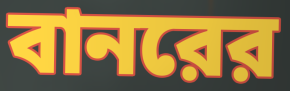
বানরের